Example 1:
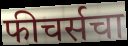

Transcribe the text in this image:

फीचर्सचा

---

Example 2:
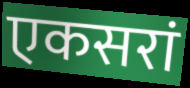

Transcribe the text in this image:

एकसरां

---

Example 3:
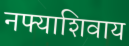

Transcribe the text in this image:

नफ्याशिवाय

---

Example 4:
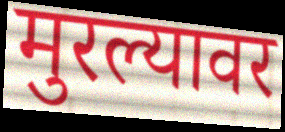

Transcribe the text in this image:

मुरल्यावर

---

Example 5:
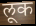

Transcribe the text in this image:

लूक